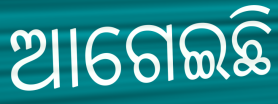
ଆଗେଇଛି